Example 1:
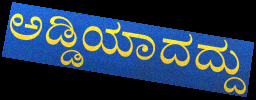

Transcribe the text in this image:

ಅಡ್ಡಿಯಾದದ್ದು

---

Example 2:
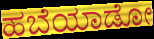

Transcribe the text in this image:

ಹಬೆಯಾಡೋ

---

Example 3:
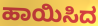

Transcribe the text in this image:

ಹಾಯಿಸಿದ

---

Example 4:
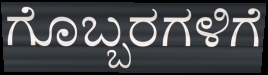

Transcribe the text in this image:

ಗೊಬ್ಬರಗಳಿಗೆ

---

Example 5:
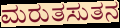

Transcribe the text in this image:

ಮರುತಸುತನ